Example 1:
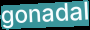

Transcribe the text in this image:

gonadal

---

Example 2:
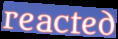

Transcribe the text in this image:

reacted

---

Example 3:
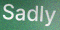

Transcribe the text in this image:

Sadly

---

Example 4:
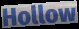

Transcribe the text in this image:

Hollow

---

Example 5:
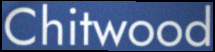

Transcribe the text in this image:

Chitwood